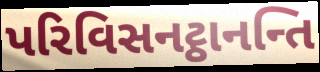
પરિવિસનટ્ઠાનન્તિ